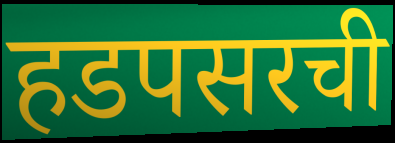
हडपसरची